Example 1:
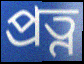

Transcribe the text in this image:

প্ৰত্ন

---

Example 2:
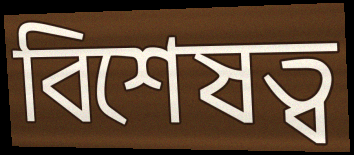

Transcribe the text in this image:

বিশেষত্ব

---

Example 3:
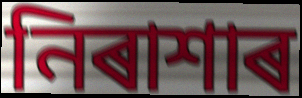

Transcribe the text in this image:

নিৰাশাৰ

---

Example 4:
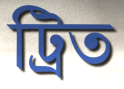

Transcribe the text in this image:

ট্ৰিত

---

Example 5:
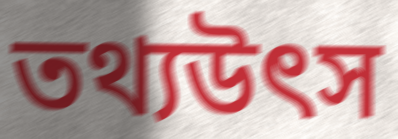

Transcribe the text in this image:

তথ্যউৎস